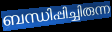
ബന്ധിപ്പിച്ചിരുന്ന